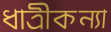
ধাত্রীকন্যা